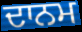
ਦਾਨਮ